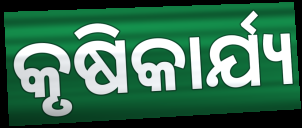
କୃଷିକାର୍ଯ୍ୟ